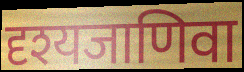
दृश्यजाणिवा